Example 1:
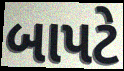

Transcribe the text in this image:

બાપટે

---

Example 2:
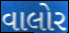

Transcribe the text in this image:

વાલોર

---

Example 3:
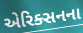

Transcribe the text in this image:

એરિક્સનના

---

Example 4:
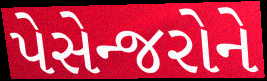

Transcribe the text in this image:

પેસેન્જરોને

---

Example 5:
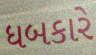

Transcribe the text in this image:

ધબકારે